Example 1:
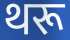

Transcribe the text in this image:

थरू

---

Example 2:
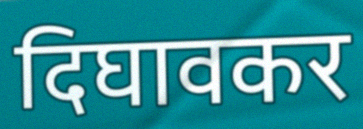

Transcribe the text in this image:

दिघावकर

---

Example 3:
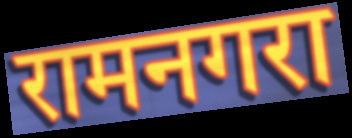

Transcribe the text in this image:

रामनगरा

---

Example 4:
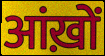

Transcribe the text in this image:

आंख़ों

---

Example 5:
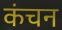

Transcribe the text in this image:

कंचन